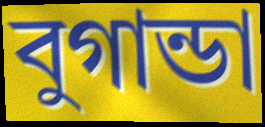
বুগান্ডা